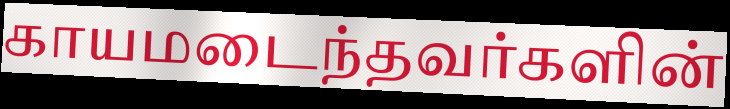
காயமடைந்தவர்களின்